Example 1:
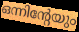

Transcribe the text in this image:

ഒന്നിന്റേയും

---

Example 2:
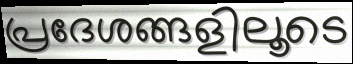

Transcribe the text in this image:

പ്രദേശങ്ങളിലൂടെ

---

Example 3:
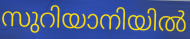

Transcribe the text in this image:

സുറിയാനിയിൽ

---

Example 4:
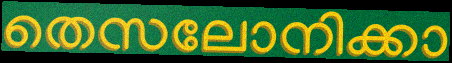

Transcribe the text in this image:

തെസലോനിക്കാ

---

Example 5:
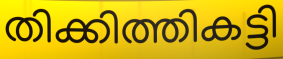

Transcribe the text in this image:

തിക്കിത്തികട്ടി